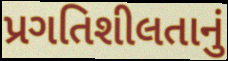
પ્રગતિશીલતાનું